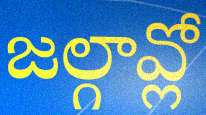
జల్గావ్లో